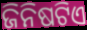
ଜିନିଷଟିଏ